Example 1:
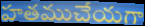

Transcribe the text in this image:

హతముచేయగా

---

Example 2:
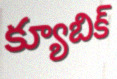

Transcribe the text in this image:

క్యూబిక్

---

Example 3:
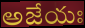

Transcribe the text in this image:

అజేయః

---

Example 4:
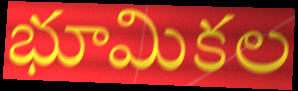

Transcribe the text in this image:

భూమికల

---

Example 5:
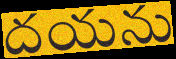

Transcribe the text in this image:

దయను